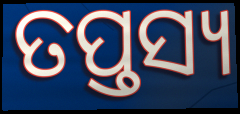
ତପ୍ତସ୍ୟ